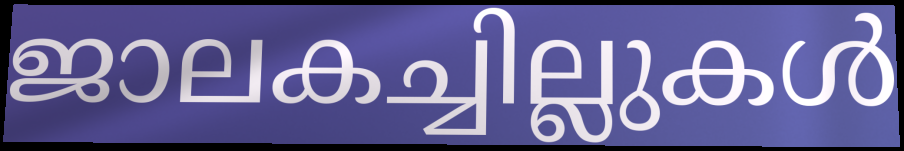
ജാലകച്ചില്ലുകൾ